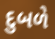
દુબળે